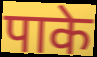
पाके